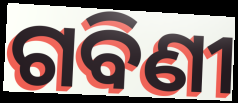
ଗବିଣୀ